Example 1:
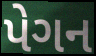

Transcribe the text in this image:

પેગન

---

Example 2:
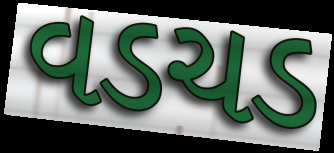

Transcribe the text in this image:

વડચડ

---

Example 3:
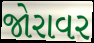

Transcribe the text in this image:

જોરાવર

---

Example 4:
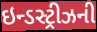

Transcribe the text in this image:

ઇન્ડસ્ટ્રીઝની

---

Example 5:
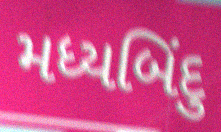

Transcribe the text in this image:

મધ્યબિંદુ